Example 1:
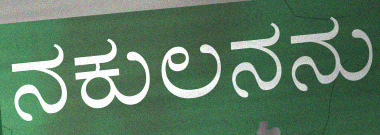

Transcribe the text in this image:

ನಕುಲನನು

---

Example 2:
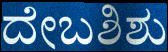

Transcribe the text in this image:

ದೇಬಶಿಶು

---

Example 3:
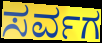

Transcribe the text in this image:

ಸರ್ವಗ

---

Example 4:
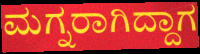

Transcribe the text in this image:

ಮಗ್ನರಾಗಿದ್ದಾಗ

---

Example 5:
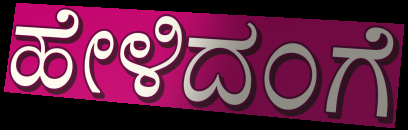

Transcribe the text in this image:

ಹೇಳಿದಂಗೆ